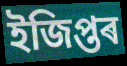
ইজিপ্তৰ